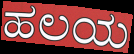
ಹಲಯ